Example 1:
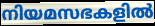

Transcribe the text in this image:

നിയമസഭകളിൽ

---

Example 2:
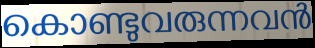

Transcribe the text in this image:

കൊണ്ടുവരുന്നവൻ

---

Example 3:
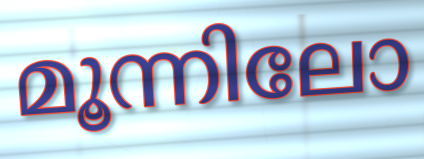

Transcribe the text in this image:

മൂന്നിലോ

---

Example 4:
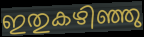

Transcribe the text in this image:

ഇതുകഴിഞ്ഞു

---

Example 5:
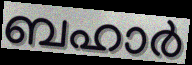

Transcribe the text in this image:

ബഹാർ